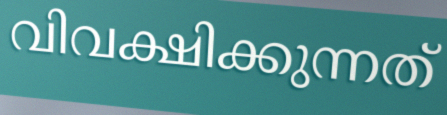
വിവക്ഷിക്കുന്നത്